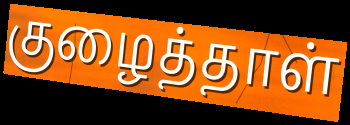
குழைத்தாள்